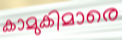
കാമുകിമാരെ